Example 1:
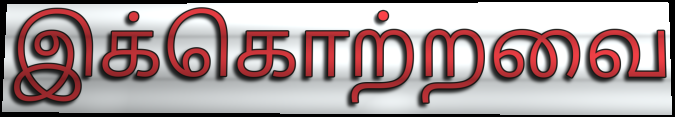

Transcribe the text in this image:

இக்கொற்றவை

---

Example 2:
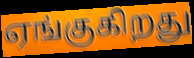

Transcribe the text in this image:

ஏங்குகிறது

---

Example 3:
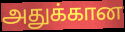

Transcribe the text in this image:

அதுக்கான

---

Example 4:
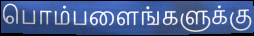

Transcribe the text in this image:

பொம்பளைங்களுக்கு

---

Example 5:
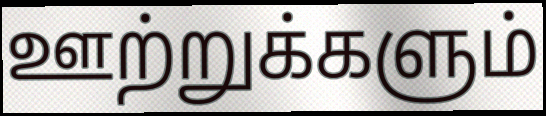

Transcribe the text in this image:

ஊற்றுக்களும்